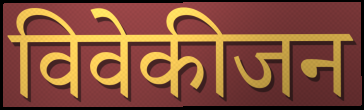
विवेकीजन